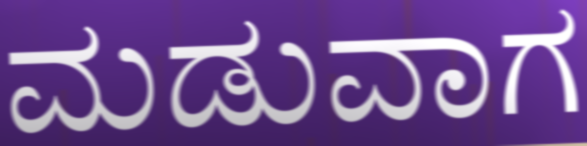
ಮಡುವಾಗ